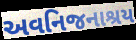
અવનિજનાશ્રય